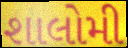
શાલોમી